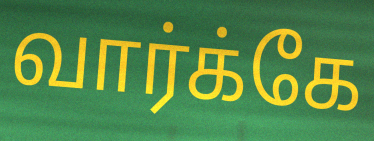
வார்க்கே